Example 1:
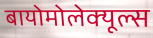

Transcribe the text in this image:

बायोमोलेक्यूल्स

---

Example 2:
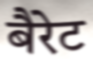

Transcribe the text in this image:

बैरेट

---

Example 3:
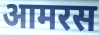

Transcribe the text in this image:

आमरस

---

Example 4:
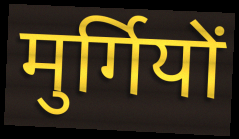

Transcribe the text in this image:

मुर्गियों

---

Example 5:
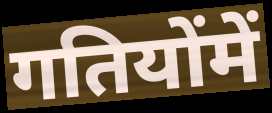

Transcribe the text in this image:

गतियोंमें